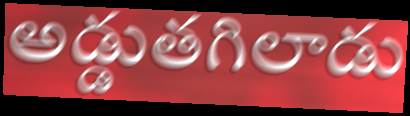
అడ్డుతగిలాడు